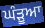
ਘੰੜੂਆ